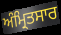
ਅੰਮ੍ਰਿਤਸਾਰ